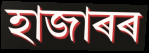
হাজাৰৰ